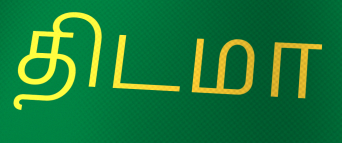
திடமா